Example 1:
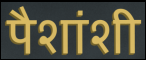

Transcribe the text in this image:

पैशांशी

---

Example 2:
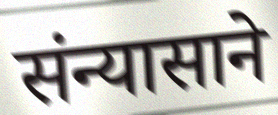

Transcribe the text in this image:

संन्यासाने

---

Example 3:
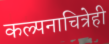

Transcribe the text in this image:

कल्पनाचित्रेही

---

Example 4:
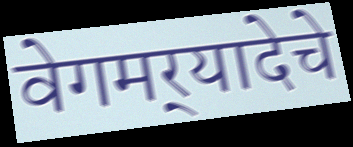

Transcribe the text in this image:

वेगमर्यादेचे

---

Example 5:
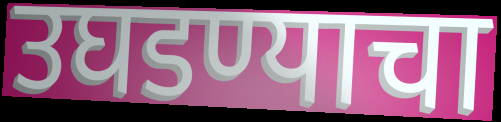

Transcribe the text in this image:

उघडण्याचा